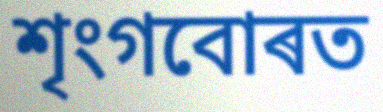
শৃংগবোৰত